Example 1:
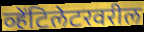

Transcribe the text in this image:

व्हेंटिलेटरवरील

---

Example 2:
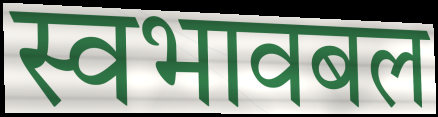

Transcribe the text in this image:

स्वभावबल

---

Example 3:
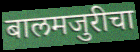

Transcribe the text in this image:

बालमजुरीचा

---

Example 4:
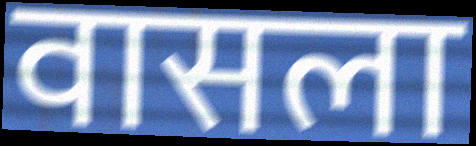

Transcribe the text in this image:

वासला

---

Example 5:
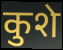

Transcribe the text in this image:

कुशे